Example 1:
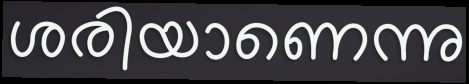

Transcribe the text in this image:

ശരിയാണെന്നു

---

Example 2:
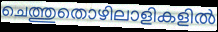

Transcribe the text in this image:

ചെത്തുതൊഴിലാളികളിൽ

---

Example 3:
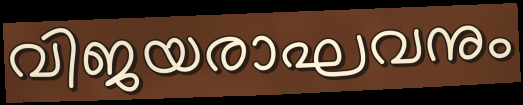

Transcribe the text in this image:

വിജയരാഘവനും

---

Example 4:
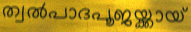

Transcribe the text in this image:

ത്വൽപാദപൂജയ്ക്കായ്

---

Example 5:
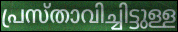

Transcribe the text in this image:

പ്രസ്താവിച്ചിട്ടുള്ള